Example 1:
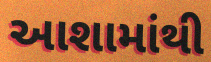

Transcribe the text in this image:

આશામાંથી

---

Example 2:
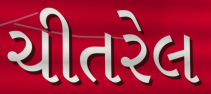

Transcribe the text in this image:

ચીતરેલ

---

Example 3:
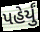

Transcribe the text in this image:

પહેર્યું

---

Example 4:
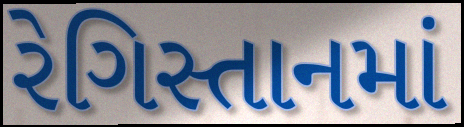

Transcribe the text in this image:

રેગિસ્તાનમાં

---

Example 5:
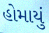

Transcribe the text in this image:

હોમાયું